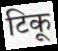
टिकू